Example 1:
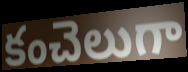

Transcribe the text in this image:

కంచెలుగా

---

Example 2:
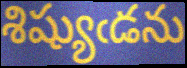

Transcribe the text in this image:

శిష్యుఁడను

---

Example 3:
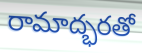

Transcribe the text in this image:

రామాద్భరతో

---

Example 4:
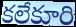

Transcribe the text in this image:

కలేకూరి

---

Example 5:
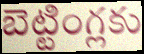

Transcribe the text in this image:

బెట్టింగ్లకు